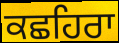
ਕਛਹਿਰਾ